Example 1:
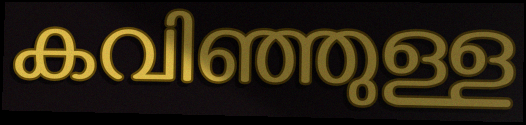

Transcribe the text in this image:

കവിഞ്ഞുള്ള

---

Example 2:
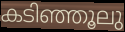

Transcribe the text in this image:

കടിഞ്ഞൂലു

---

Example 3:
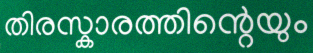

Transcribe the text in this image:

തിരസ്കാരത്തിന്റെയും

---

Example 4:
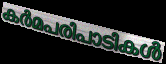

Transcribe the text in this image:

കർമപരിപാടികൾ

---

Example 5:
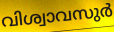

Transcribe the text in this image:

വിശ്വാവസുർ